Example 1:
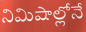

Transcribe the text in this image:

నిమిషాల్లోనే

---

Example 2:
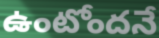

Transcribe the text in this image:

ఉంటోందనే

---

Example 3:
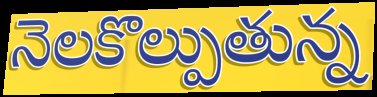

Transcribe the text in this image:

నెలకొల్పుతున్న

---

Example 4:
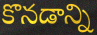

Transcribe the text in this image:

కొనడాన్ని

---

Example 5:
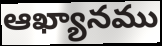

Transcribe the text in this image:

ఆఖ్యానము